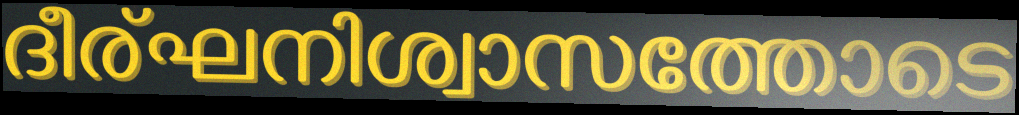
ദീര്ഘനിശ്വാസത്തോടെ